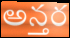
అన్తర